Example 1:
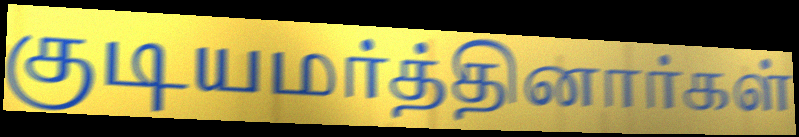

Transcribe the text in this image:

குடியமர்த்தினார்கள்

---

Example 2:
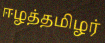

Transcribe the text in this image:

ஈழத்தமிழர்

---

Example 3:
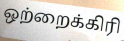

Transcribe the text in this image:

ஒற்றைக்கிரி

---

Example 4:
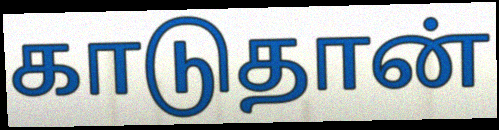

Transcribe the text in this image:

காடுதான்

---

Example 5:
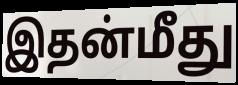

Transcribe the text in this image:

இதன்மீது